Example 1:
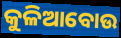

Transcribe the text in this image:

କୁଳିଆବୋଉ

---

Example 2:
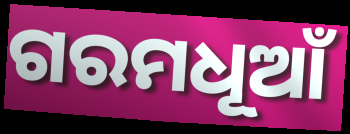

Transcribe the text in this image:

ଗରମଧୂଆଁ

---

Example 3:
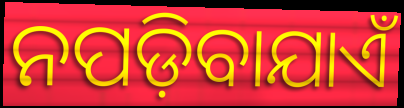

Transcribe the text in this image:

ନପଡ଼ିବାଯାଏଁ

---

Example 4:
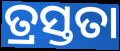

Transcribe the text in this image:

ତ୍ରସ୍ତତା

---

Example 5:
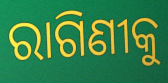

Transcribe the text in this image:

ରାଗିଣୀକୁ